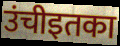
उंचीइतका